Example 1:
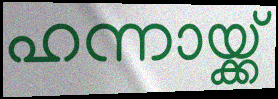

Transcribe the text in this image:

ഹന്നായ്ക്ക്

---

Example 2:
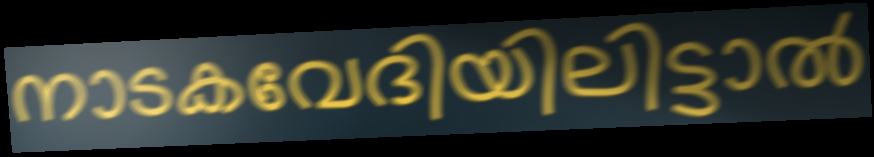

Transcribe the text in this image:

നാടകവേദിയിലിട്ടാൽ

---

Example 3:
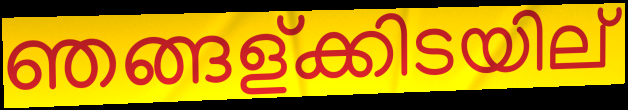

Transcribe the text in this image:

ഞങ്ങള്ക്കിടയില്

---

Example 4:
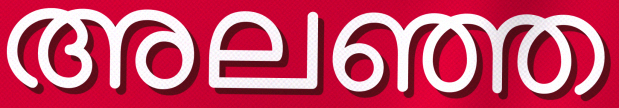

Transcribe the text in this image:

അലഞ്ഞ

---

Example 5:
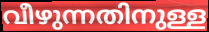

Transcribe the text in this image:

വീഴുന്നതിനുള്ള